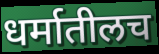
धर्मातीलच